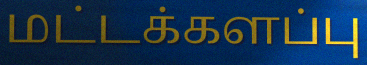
மட்டக்களப்பு